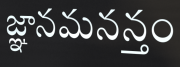
జ్ఞానమనన్తం